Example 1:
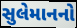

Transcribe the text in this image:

સુલેમાનનો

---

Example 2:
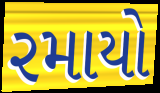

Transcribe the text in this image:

રમાયો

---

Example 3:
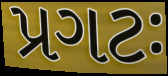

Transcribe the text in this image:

પ્રગટઃ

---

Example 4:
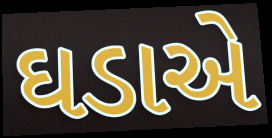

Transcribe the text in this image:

ઘડાએ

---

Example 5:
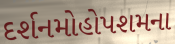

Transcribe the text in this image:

દર્શનમોહોપશમના